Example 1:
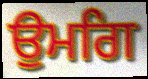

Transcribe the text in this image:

ਉਮਗਿ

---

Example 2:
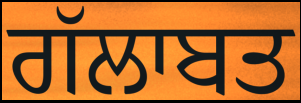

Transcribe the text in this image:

ਗੱਲਾਬਤ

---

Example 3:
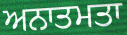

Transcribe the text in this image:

ਅਨਾਤਮਤਾ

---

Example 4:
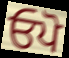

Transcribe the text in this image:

ਓਪੋ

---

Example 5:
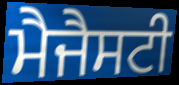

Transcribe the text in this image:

ਮੈਜੈਸਟੀ